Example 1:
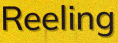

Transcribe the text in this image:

Reeling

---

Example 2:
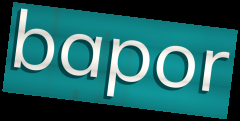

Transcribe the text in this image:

bapor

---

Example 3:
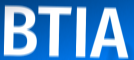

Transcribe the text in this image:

BTIA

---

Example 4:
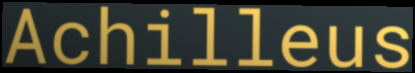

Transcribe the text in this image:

Achilleus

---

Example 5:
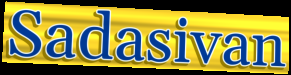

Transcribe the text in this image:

Sadasivan